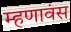
म्हणावंस